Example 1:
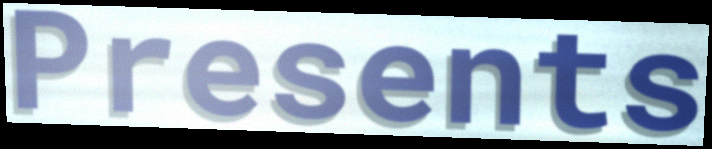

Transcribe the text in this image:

Presents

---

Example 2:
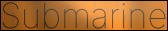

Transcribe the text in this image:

Submarine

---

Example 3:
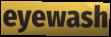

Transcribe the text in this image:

eyewash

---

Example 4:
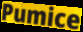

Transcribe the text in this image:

Pumice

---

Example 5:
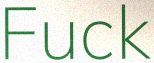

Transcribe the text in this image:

Fuck